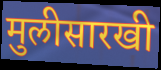
मुलीसारखी